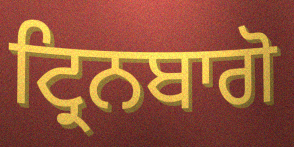
ਟ੍ਰਿਨਬਾਗੋ